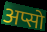
अप्सो